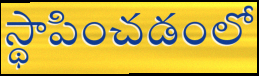
స్థాపించడంలో